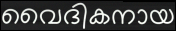
വൈദികനായ